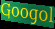
Googol